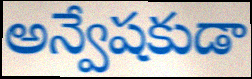
అన్వేషకుడా